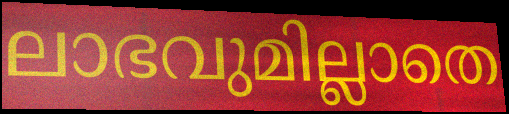
ലാഭവുമില്ലാതെ